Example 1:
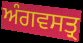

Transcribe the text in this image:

ਅੰਗਵਸਤ੍ਰ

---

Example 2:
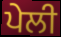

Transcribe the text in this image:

ਪੇਲੀ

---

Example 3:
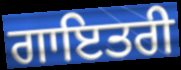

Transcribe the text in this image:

ਗਾਇਤਰੀ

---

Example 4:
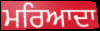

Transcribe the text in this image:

ਮਰਿਆਦਾ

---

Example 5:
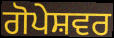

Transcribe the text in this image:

ਗੋਪੇਸ਼ਵਰ